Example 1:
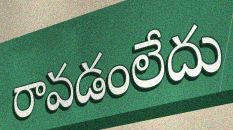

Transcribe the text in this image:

రావడంలేదు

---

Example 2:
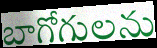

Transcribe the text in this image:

బాగోగులను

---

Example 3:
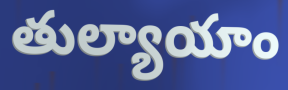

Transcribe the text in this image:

తుల్యాయాం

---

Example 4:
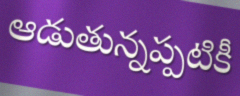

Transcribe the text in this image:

ఆడుతున్నప్పటికీ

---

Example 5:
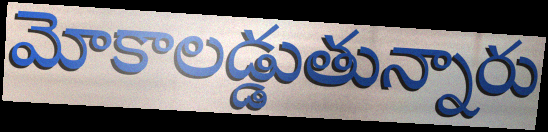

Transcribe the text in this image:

మోకాలడ్డుతున్నారు